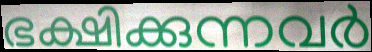
ഭക്ഷിക്കുന്നവർ